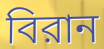
বিরান